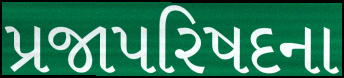
પ્રજાપરિષદના